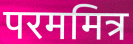
परममित्र